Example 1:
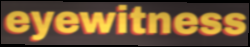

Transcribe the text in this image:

eyewitness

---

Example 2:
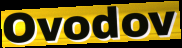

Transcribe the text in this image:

Ovodov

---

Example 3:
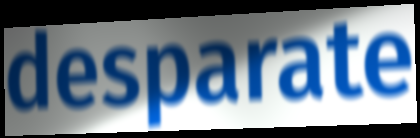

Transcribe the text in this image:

desparate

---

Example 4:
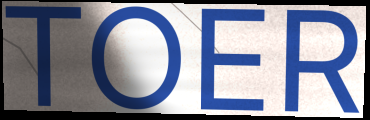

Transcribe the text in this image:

TOER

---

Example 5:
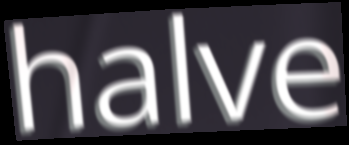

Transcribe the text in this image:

halve